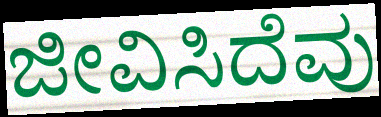
ಜೀವಿಸಿದೆವು